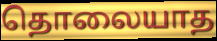
தொலையாத